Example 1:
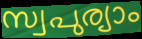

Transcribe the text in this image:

സ്വപുര്യാം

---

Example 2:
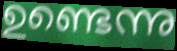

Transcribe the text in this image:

ഉണ്ടെന്നു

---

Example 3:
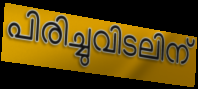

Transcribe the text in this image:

പിരിച്ചുവിടലിന്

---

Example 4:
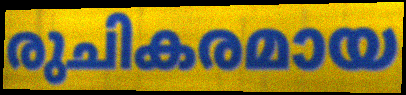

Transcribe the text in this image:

രുചികരമായ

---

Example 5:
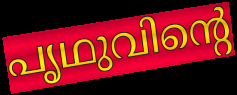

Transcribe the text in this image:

പൃഥുവിന്റെ